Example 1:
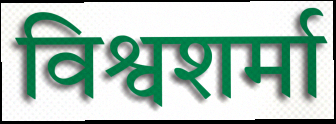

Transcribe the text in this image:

विश्वशर्मा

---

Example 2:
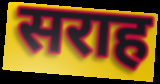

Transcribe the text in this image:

सराह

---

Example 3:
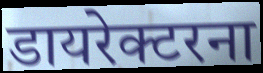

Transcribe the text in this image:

डायरेक्टरना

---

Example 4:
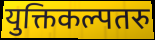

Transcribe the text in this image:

युक्तिकल्पतरु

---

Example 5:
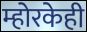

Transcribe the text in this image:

म्होरकेही